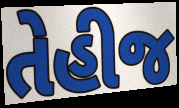
તેહીજ